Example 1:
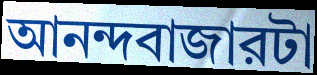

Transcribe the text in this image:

আনন্দবাজারটা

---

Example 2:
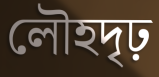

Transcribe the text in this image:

লৌহদৃঢ়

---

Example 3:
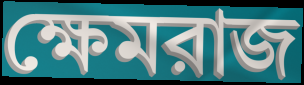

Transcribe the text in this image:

ক্ষেমরাজ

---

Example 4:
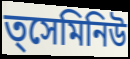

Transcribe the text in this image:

ত্সেমিনিউ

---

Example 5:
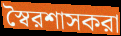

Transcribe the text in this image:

স্বৈরশাসকরা